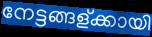
നേട്ടങ്ങള്ക്കായി